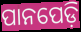
ପାନପେଡ଼ି